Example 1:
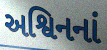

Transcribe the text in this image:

અશ્વિનનાં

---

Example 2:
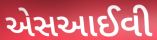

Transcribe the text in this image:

એસઆઈવી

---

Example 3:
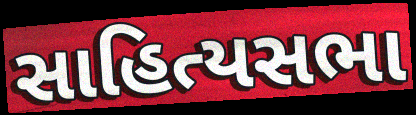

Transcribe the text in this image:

સાહિત્યસભા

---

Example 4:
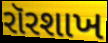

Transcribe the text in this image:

રૉરશાખ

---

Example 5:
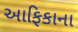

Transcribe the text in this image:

આફિકાના